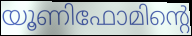
യൂണിഫോമിന്റെ